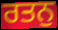
ਰਤਨੁ